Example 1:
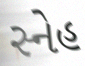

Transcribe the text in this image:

સ્નેહ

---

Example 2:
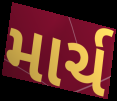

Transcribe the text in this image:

માર્ચ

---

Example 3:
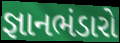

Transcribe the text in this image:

જ્ઞાનભંડારો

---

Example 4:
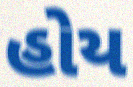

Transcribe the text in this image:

હોય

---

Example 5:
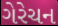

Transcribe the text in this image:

ગેરેચન